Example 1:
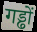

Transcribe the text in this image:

गड्ढों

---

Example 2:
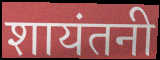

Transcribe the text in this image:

शायंतनी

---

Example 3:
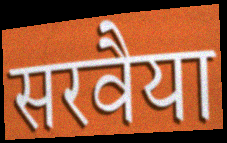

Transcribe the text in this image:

सरवैया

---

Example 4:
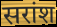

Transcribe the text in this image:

सरांश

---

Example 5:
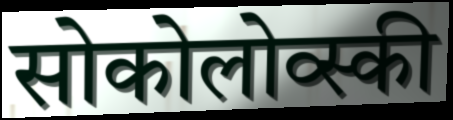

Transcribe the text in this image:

सोकोलोव्स्की